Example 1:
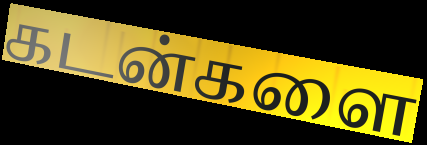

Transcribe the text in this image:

கடன்களை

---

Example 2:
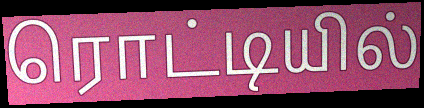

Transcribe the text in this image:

ரொட்டியில்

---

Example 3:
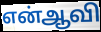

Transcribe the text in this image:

என்ஆவி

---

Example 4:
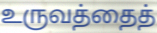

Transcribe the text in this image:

உருவத்தைத்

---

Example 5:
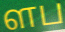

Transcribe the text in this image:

ளப